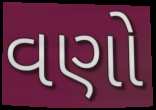
વણો